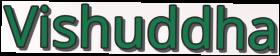
Vishuddha